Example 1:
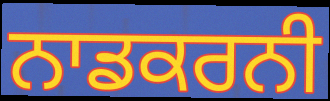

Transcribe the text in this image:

ਨਾਡਕਰਨੀ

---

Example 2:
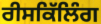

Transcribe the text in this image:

ਰੀਸਕਿੱਲਿੰਗ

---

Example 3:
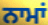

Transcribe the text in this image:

ਨਾਮਾਂ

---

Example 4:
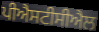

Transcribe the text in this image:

ਪੀਐਸਟੀਸੀਐਲ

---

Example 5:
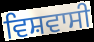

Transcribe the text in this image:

ਵਿਸ਼ਵਾਸੀ